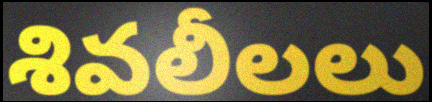
శివలీలలు